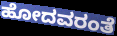
ಹೋದವರಂತೆ